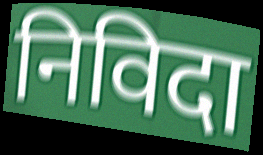
निविदा